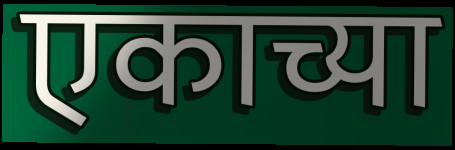
एकाच्या